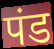
पंड